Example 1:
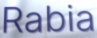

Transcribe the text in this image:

Rabia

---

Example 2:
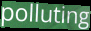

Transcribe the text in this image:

polluting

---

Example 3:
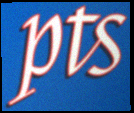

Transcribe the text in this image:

pts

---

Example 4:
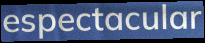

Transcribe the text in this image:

espectacular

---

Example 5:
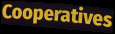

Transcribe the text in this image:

Cooperatives